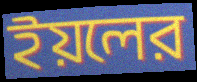
ইয়লের